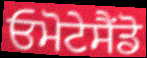
ਓਮੋਟੇਸੈਂਡੋ